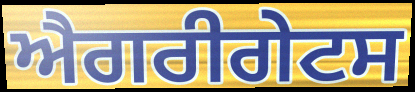
ਐਗਰੀਗੇਟਸ